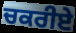
ਚਕਰੀਏ